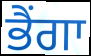
ਭੈਂਗਾ